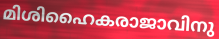
മിശിഹൈകരാജാവിനു